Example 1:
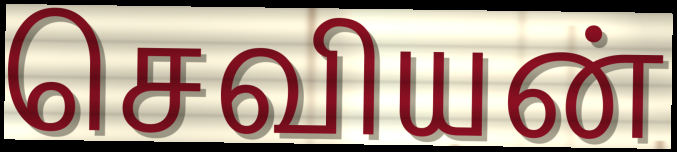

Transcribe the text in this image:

செவியன்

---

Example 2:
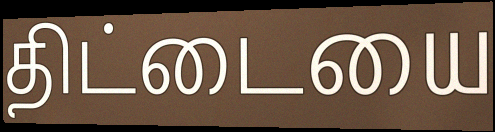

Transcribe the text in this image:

திட்டையை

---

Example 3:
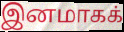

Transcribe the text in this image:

இனமாகக்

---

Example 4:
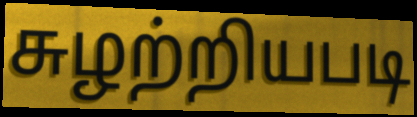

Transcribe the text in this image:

சுழற்றியபடி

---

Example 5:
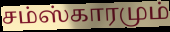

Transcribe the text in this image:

சம்ஸ்காரமும்